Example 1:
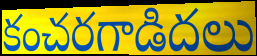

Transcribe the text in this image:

కంచరగాడిదలు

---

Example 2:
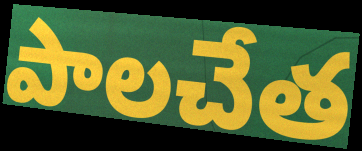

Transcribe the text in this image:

పాలచేత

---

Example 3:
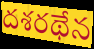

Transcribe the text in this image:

దశరథేన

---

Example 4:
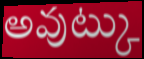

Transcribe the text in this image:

అవుట్కు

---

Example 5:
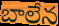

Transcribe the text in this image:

బాలేన